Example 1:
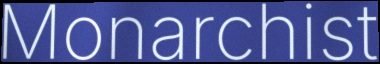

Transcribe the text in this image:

Monarchist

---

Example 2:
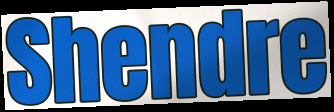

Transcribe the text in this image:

Shendre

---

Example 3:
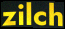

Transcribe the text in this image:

zilch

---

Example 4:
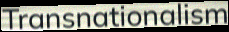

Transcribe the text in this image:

Transnationalism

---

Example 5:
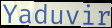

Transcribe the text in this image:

Yaduvir